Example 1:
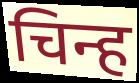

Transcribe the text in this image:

चिन्ह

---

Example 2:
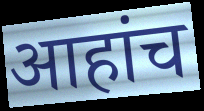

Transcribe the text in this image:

आहांच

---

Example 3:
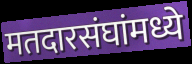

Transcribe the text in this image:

मतदारसंघांमध्ये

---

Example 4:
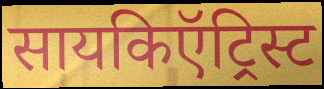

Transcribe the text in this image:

सायकिऍट्रिस्ट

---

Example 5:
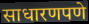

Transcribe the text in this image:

साधारणपणे